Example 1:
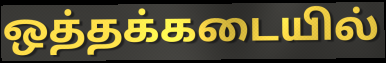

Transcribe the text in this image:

ஒத்தக்கடையில்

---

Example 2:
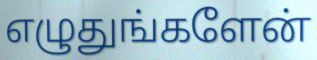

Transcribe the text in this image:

எழுதுங்களேன்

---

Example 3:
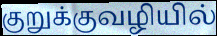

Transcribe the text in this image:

குறுக்குவழியில்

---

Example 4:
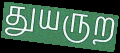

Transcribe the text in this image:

துயருற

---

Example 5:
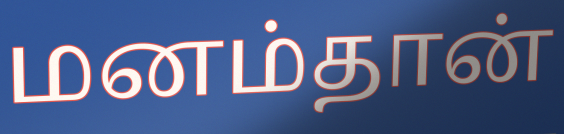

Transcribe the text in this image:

மனம்தான்